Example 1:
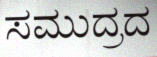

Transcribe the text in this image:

ಸಮುದ್ರದ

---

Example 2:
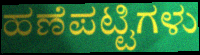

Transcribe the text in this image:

ಹಣೆಪಟ್ಟಿಗಳು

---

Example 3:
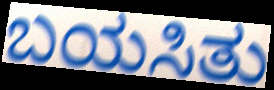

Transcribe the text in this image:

ಬಯಸಿತು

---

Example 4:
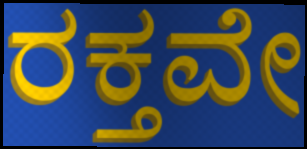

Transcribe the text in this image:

ರಕ್ತವೇ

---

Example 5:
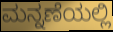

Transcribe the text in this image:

ಮನ್ನಣೆಯಲ್ಲಿ